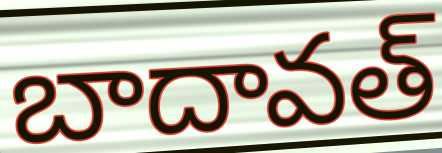
బాదావత్